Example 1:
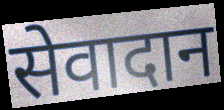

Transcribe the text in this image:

सेवादान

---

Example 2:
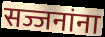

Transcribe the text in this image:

सज्जनांना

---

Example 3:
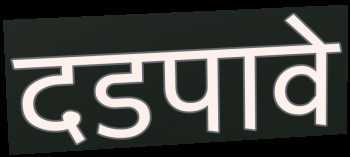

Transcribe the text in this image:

दडपावे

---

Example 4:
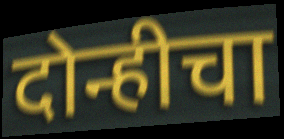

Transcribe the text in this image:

दोन्हीचा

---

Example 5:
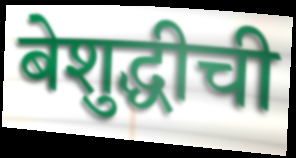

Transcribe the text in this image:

बेशुद्धीची